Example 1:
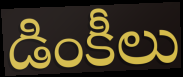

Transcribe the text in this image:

డింకీలు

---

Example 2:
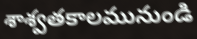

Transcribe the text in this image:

శాశ్వతకాలమునుండి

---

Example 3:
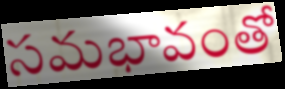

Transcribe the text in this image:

సమభావంతో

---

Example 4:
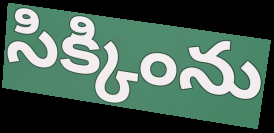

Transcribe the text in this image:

సిక్కింను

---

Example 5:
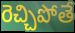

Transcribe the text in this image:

రెచ్చిపోతే